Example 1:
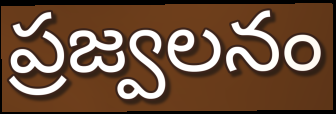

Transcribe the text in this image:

ప్రజ్వలనం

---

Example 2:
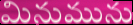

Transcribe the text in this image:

మినుమును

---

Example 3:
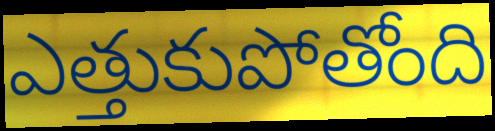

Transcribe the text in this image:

ఎత్తుకుపోతోంది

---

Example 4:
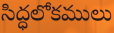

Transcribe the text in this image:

సిద్ధలోకములు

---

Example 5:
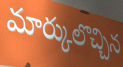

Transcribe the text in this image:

మార్కులొచ్చిన